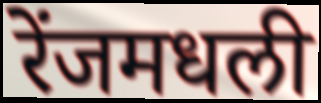
रेंजमधली